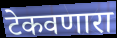
टेकवणारा